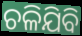
ଚଳିଯିବି